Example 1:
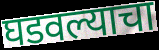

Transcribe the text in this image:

घडवल्याचा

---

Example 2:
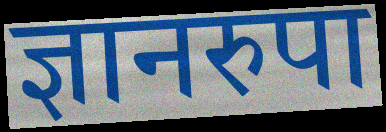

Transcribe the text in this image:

ज्ञानरुपा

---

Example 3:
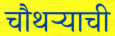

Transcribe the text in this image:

चौथऱ्याची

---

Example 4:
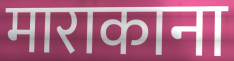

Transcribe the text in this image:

माराकाना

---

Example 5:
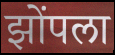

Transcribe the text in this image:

झोंपला